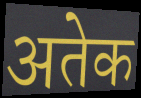
अतेक